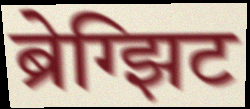
ब्रेग्झिट